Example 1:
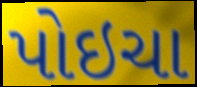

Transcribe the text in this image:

પોઇચા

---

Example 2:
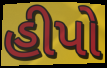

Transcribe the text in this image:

હીપો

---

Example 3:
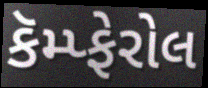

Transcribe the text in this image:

કૅમ્પ્ફેરોલ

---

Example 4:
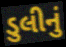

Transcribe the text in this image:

ડુલીનું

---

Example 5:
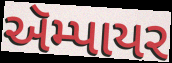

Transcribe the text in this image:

ઍમ્પાયર